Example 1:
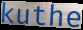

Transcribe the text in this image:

kuthe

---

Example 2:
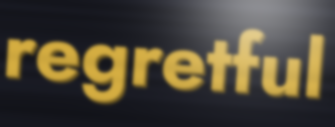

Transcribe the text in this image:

regretful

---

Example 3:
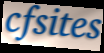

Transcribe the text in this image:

cfsites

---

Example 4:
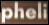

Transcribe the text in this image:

pheli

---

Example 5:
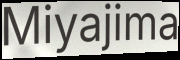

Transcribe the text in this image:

Miyajima